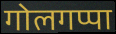
गोलगप्पा